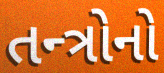
તન્ત્રોનો